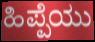
ಹಿಪ್ಪೆಯು